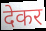
देकर